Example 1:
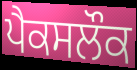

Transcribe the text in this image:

ਪੈਕਸਲੌਕ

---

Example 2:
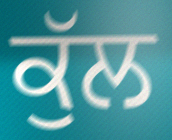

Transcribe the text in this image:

ਕੁੱਲ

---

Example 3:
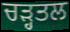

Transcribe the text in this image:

ਚੜ੍ਹਤਲ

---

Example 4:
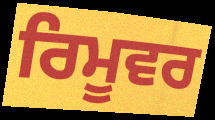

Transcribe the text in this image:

ਰਿਮੂਵਰ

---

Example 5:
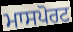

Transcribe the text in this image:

ਮਾਸਪੋਰਟ